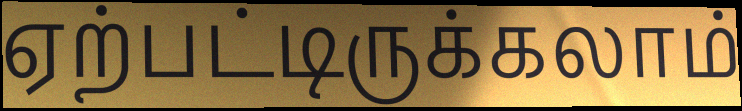
ஏற்பட்டிருக்கலாம்